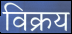
विक्रय